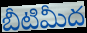
బీటిమీద